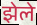
झेले